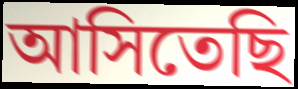
আসিতেছি